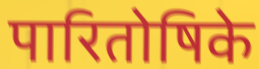
पारितोषिके